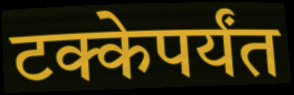
टक्केपर्यंत